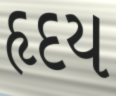
હૃદય